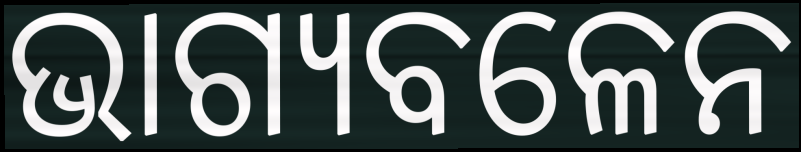
ଭାଗ୍ୟବଳେନ